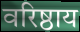
वरिष्ठाय